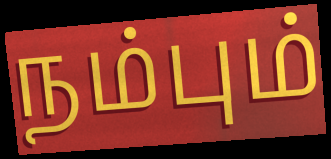
நம்பும்